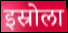
इस्रोला